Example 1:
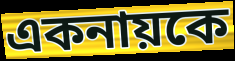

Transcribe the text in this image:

একনায়কে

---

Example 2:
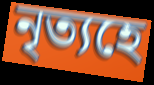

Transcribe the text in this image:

নৃত্যহে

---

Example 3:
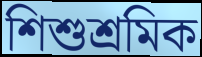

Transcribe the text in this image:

শিশুশ্ৰমিক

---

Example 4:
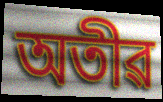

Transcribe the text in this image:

অতীৱ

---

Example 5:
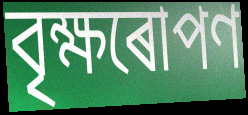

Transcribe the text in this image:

বৃক্ষৰোপণ